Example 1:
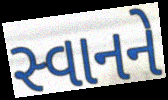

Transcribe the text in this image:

સ્વાનને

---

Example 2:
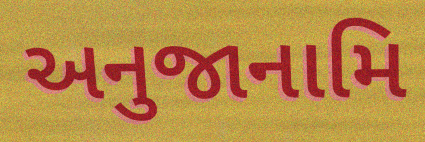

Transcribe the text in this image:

અનુજાનામિ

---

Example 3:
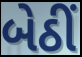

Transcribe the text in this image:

બેઠીં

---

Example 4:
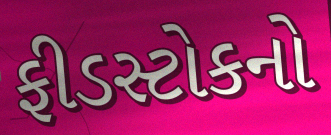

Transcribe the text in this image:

ફીડસ્ટોકનો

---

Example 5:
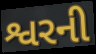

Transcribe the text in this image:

શ્વરની